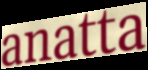
anatta